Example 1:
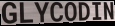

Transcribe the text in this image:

GLYCODIN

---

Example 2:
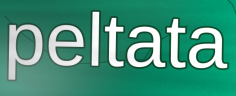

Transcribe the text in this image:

peltata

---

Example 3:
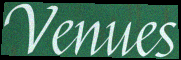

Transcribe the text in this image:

Venues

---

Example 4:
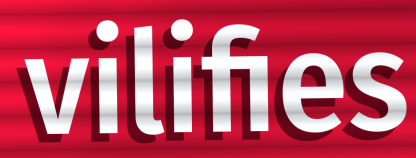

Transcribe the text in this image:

vilifies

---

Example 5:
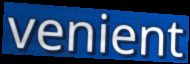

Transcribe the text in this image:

venient